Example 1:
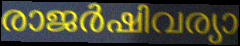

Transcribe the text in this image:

രാജർഷിവര്യാ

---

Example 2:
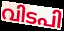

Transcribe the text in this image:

വിടപി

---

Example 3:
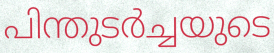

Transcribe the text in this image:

പിന്തുടർച്ചയുടെ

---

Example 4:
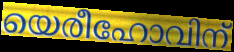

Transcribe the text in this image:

യെരീഹോവിന്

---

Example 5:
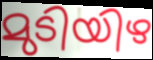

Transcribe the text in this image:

മുടിയിഴ